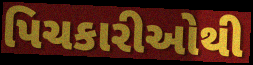
પિચકારીઓથી